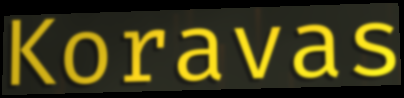
Koravas